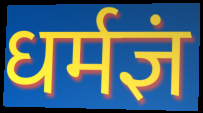
धर्मज्ञं